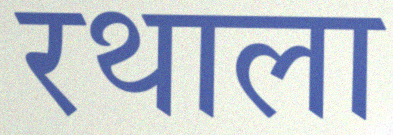
रथाला